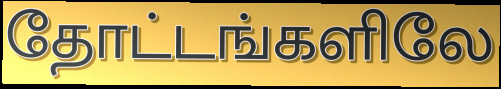
தோட்டங்களிலே